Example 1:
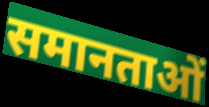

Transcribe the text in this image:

समानताओं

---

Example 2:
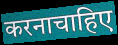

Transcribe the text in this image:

करनाचाहिए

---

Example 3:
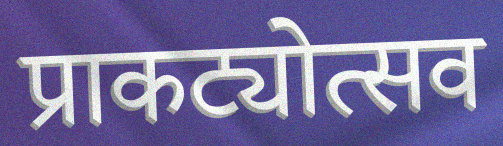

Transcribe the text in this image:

प्राकट्योत्सव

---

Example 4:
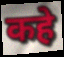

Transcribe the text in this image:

कहे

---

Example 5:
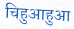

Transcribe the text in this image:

चिहुआहुआ